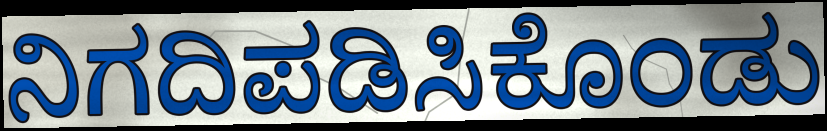
ನಿಗದಿಪಡಿಸಿಕೊಂಡು